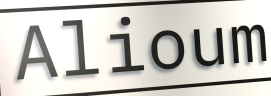
Alioum